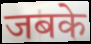
जबके